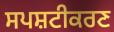
ਸਪਸ਼ਟੀਕਰਣ